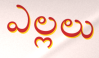
ఎల్లలు